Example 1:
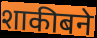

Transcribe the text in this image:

शाकीबने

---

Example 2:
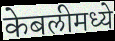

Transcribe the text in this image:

केबलीमध्ये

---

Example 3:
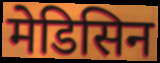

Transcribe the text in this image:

मेडिसिन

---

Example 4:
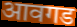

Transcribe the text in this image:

आवगड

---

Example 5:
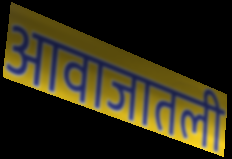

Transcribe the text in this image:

आवाजातली